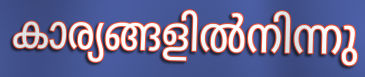
കാര്യങ്ങളിൽനിന്നു